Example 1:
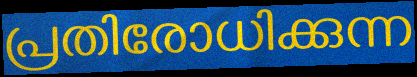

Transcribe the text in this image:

പ്രതിരോധിക്കുന്ന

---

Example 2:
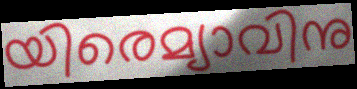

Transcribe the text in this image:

യിരെമ്യാവിനു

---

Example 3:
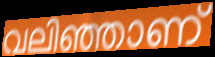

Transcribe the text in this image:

വലിഞ്ഞാണ്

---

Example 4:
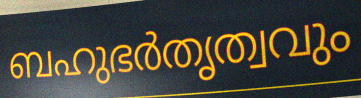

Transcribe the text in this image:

ബഹുഭർതൃത്വവും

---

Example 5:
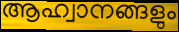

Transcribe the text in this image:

ആഹ്വാനങ്ങളും